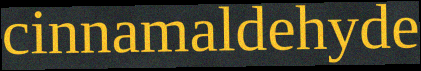
cinnamaldehyde